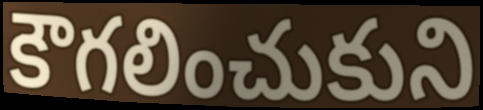
కౌగలించుకుని